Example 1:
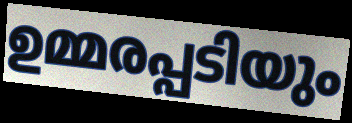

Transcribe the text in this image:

ഉമ്മരപ്പടിയും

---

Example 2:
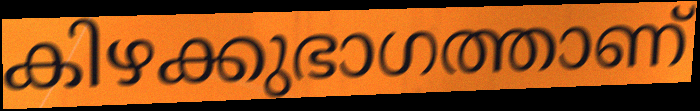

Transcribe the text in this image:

കിഴക്കുഭാഗത്താണ്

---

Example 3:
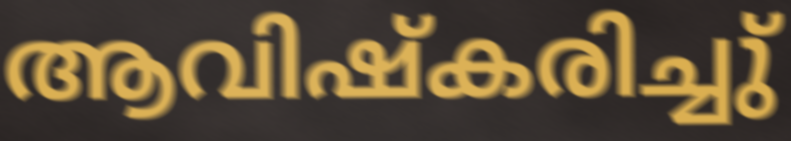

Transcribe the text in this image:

ആവിഷ്കരിച്ചു്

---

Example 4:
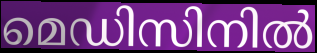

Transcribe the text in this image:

മെഡിസിനിൽ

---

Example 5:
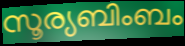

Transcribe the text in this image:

സൂര്യബിംബം